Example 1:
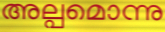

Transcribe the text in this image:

അല്പമൊന്നു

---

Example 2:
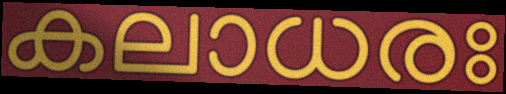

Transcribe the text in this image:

കലാധരഃ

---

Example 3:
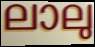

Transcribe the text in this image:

ലാലു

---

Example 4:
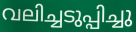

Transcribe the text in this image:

വലിച്ചടുപ്പിച്ചു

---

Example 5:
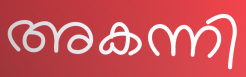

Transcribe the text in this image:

അകന്നി